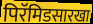
पिरॅमिडसारखा